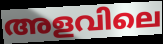
അളവിലെ